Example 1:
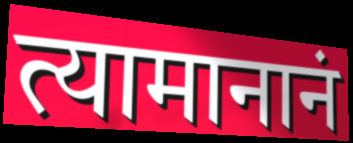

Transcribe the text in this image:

त्यामानानं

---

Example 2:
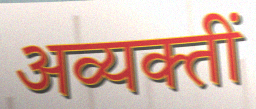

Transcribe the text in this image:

अव्यक्तीं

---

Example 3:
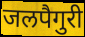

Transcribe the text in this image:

जलपैगुरी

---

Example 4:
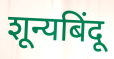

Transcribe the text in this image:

शून्यबिंदू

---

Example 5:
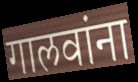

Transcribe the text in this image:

गालवांना